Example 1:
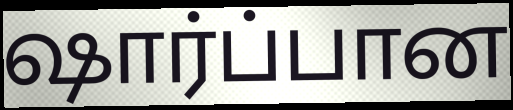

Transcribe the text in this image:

ஷார்ப்பான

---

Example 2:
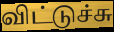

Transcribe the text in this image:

விட்டுச்சு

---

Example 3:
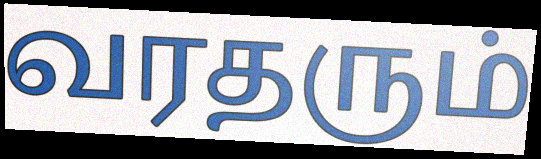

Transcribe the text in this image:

வரதரும்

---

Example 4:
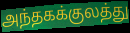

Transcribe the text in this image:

அந்தகக்குலத்து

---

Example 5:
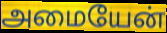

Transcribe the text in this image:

அமையேன்